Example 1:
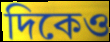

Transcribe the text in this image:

দিকেও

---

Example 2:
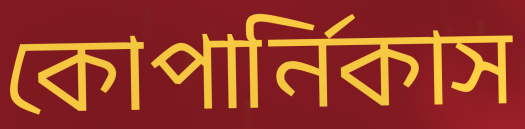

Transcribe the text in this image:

কোপার্নিকাস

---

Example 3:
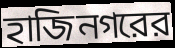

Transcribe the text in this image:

হাজিনগরের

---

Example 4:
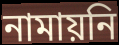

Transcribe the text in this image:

নামায়নি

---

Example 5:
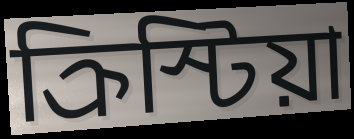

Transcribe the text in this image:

ক্রিস্টিয়া